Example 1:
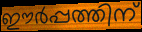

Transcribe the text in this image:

ഈർപ്പത്തിന്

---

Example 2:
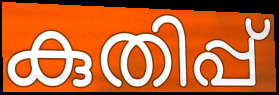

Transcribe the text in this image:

കുതിപ്പ്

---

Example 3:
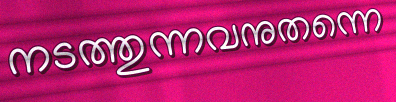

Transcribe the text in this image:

നടത്തുന്നവനുതന്നെ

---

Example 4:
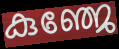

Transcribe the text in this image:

കുഞ്ജേ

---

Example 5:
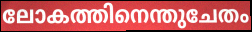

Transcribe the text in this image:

ലോകത്തിനെന്തുചേതം